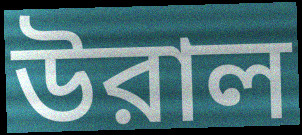
উরাল